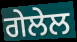
ਗੇਲੇਲ